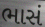
ભાસં